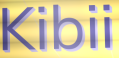
Kibii